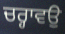
ਚਰ੍ਹਾਵਉ